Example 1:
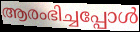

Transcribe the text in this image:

ആരംഭിച്ചപ്പോൾ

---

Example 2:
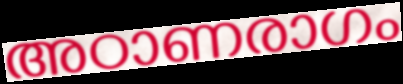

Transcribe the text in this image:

അഠാണരാഗം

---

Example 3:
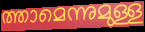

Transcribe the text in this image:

ത്താമെന്നുമുള്ള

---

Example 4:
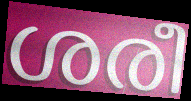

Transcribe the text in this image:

ശരീ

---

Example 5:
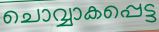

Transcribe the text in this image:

ചൊവ്വാകപ്പെട്ട